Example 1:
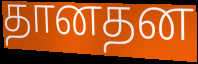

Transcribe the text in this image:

தானதன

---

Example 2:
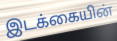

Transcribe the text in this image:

இடக்கையின்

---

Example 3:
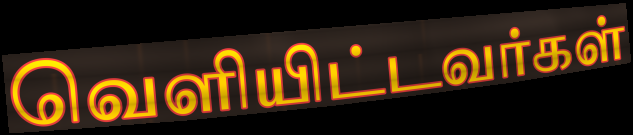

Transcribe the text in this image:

வெளியிட்டவர்கள்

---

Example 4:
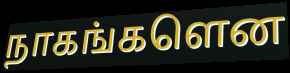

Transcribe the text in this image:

நாகங்களென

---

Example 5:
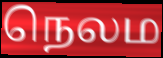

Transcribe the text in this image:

நெலம